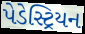
પેડેસ્ટ્રિયન